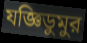
যজ্ঞিডুমুর